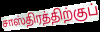
சாஸ்திரத்திற்குப்